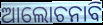
ଆଲୋଚନାବି